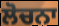
ਲੋਚਨਾ